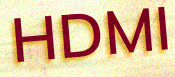
HDMI